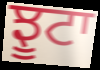
ਝੂਟਾ